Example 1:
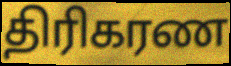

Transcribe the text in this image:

திரிகரண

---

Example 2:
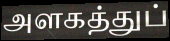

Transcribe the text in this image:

அளகத்துப்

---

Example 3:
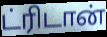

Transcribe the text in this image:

ட்ரிடான்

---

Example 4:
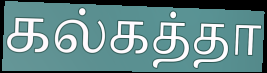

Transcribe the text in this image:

கல்கத்தா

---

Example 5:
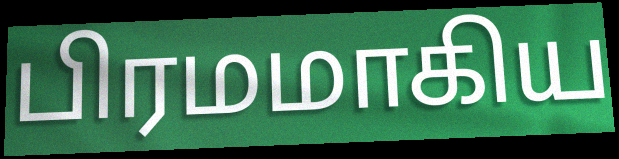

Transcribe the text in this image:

பிரமமாகிய